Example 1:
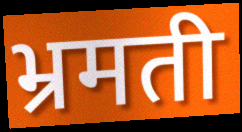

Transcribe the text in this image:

भ्रमती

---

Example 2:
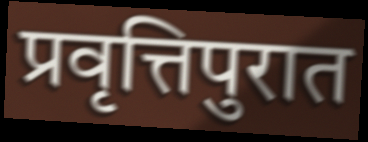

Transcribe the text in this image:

प्रवृत्तिपुरात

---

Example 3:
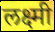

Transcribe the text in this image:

लक्ष्मी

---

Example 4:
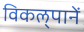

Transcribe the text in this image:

विकल्पानें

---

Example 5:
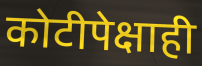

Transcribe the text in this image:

कोटीपेक्षाही